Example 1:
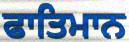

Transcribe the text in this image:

ਫਾਤਿਮਾਨ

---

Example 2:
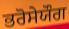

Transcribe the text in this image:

ਭਰੋਸੇਯੌਗ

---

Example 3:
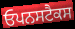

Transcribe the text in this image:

ਓਪਨਸਟੈਕਸ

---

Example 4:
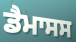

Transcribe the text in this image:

ਡੈਮਾਸਸ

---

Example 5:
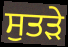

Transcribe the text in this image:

ਸੁਤੜੇ